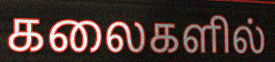
கலைகளில்